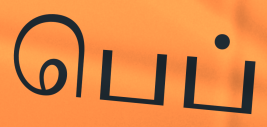
பெப்